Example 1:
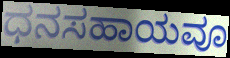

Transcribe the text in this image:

ಧನಸಹಾಯವೂ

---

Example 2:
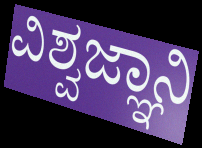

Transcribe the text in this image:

ವಿಶ್ವಜ್ಞಾನಿ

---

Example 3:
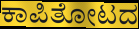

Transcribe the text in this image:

ಕಾಪಿತೋಟದ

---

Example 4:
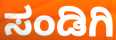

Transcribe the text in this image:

ಸಂಡಿಗಿ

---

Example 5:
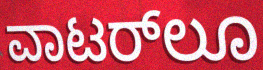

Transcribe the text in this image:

ವಾಟರ್‌ಲೂ